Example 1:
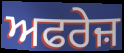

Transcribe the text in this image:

ਅਫਰੇਜ਼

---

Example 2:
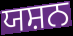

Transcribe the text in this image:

ਯਸ਼ਨ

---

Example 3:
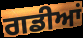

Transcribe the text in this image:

ਗਡੀਆਂ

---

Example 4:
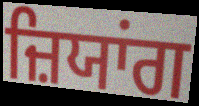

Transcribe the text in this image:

ਜ਼ਿਯਾਂਗ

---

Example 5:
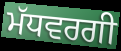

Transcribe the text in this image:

ਮੱਧਵਰਗੀ